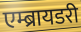
एम्ब्रायडरी